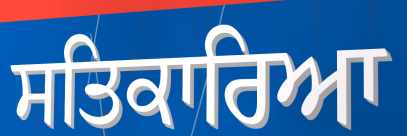
ਸਤਿਕਾਰਿਆ